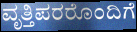
ವೃತ್ತಿಪರರೊಂದಿಗೆ